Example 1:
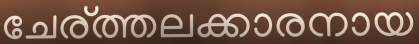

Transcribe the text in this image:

ചേര്ത്തലക്കാരനായ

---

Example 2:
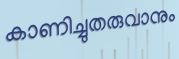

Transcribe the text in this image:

കാണിച്ചുതരുവാനും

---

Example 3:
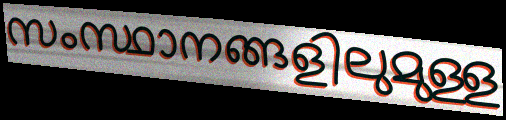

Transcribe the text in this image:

സംസ്ഥാനങ്ങളിലുമുള്ള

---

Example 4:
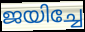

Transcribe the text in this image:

ജയിച്ചേ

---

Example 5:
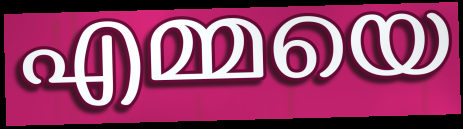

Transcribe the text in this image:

എമ്മയെ